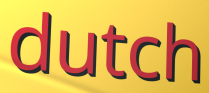
dutch